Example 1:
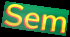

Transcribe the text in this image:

Sem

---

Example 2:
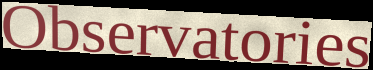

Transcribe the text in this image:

Observatories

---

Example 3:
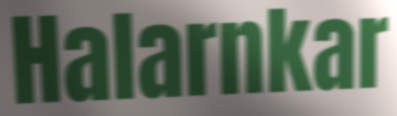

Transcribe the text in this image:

Halarnkar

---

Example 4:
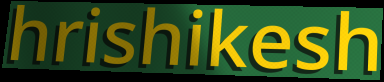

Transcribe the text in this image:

hrishikesh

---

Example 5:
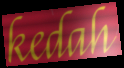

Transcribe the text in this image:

kedah